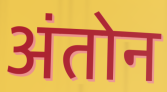
अंतोन